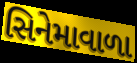
સિનેમાવાળા